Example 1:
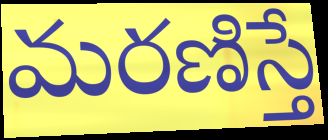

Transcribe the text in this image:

మరణిస్తే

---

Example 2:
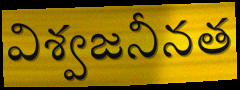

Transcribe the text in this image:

విశ్వజనీనత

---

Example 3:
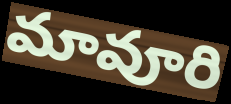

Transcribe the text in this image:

మావూరి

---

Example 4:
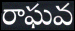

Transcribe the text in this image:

రాఘవ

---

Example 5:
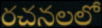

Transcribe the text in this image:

రచనలలో